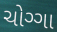
ચોગ્ગા